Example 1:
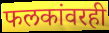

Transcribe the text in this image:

फलकांवरही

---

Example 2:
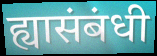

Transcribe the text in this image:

ह्यासंबंधी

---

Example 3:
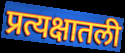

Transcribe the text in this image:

प्रत्यक्षातली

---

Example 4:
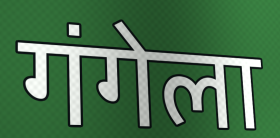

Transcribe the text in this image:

गंगेला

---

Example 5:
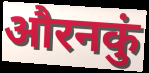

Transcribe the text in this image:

औरनकुं